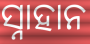
ସ୍ନାହାନ